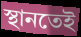
স্থানতেই